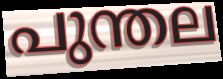
പുന്തല